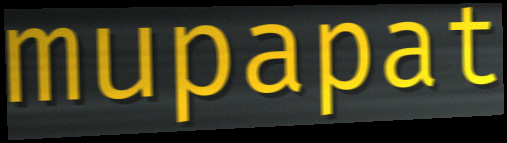
mupapat